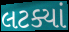
લટક્યાં